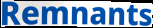
Remnants